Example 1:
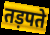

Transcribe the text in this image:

तड़पते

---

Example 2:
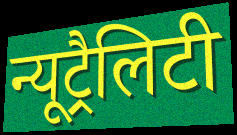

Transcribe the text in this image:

न्यूट्रैलिटी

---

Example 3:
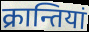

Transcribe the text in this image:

क्रान्तियां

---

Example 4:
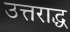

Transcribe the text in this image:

उत्तराद्ध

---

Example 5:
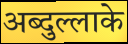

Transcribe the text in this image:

अब्दुल्लाके